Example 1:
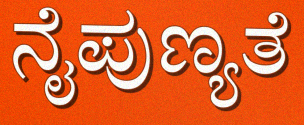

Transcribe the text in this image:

ನೈಪುಣ್ಯತೆ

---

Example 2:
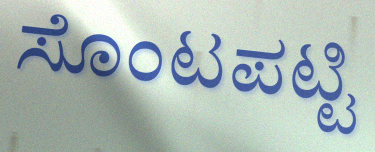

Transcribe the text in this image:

ಸೊಂಟಪಟ್ಟಿ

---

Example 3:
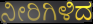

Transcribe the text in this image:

ನೀರಿಗಿಳಿದ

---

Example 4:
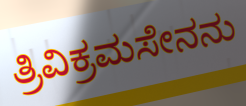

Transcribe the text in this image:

ತ್ರಿವಿಕ್ರಮಸೇನನು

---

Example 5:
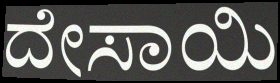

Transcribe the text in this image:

ದೇಸಾಯಿ